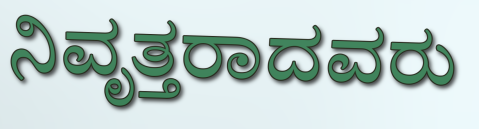
ನಿವೃತ್ತರಾದವರು